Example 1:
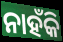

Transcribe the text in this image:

ନାହଁକି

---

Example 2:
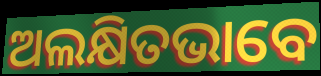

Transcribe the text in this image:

ଅଲକ୍ଷିତଭାବେ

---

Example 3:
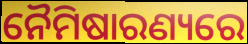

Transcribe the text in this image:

ନୈମିଷାରଣ୍ୟରେ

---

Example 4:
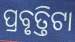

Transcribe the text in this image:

ପ୍ରବୃତ୍ତିଟା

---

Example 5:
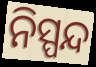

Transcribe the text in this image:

ନିସ୍ପନ୍ଦ